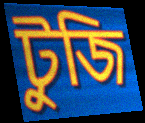
টুজি